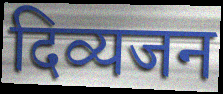
दिव्यजन